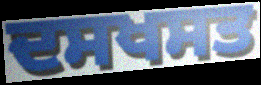
ਦਸਖਸਤ